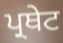
ਪ੍ਰਥੇਟ